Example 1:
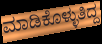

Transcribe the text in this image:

ಮಾಡಿಕೊಳ್ಳುತಿದ್ದ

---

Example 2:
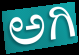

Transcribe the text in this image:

ಅಗಿ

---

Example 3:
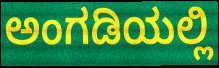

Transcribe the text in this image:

ಅಂಗಡಿಯಲ್ಲಿ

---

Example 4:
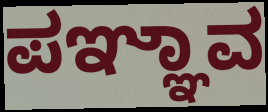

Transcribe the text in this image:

ಪಞ್ಞಾವ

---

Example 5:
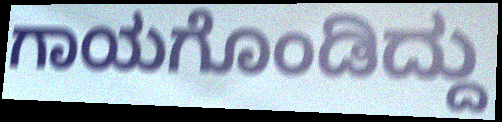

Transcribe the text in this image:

ಗಾಯಗೊಂಡಿದ್ದು